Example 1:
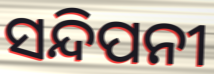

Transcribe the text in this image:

ସନ୍ଦିପନୀ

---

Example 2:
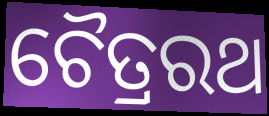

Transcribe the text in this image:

ଚୈତ୍ରରଥ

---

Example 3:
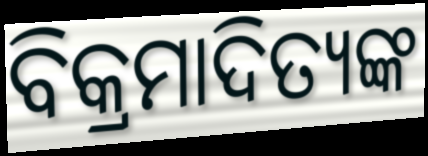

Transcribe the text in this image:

ବିକ୍ରମାଦିତ୍ୟଙ୍କ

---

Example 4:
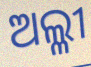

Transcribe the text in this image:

ଅଲ୍ଳୀ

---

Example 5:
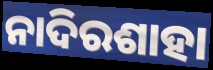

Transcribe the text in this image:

ନାଦିରଶାହା